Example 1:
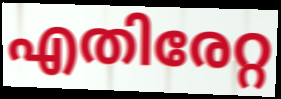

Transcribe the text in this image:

എതിരേറ്റ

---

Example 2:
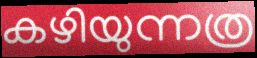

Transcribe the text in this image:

കഴിയുന്നത്ര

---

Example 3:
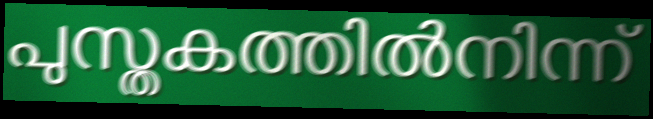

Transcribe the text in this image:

പുസ്തകത്തിൽനിന്ന്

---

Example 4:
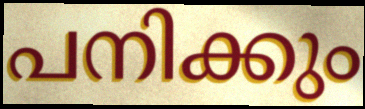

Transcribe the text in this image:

പനിക്കും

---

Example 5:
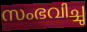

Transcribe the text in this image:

സംഭവിച്ചു